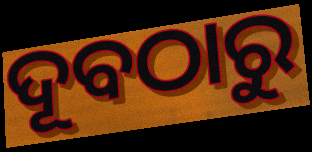
ଦୂବଠାରୁ